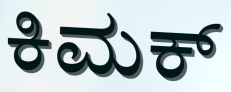
ಕಿಮಕ್